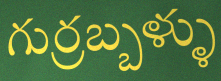
గుర్రబ్బళ్ళు